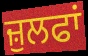
ਜ਼ੁਲਫਾਂ